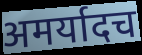
अमर्यादच